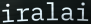
iralai